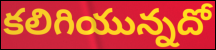
కలిగియున్నదో